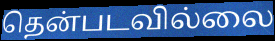
தென்படவில்லை